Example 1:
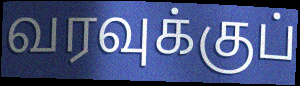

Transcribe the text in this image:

வரவுக்குப்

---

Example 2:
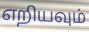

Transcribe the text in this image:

எறியவும்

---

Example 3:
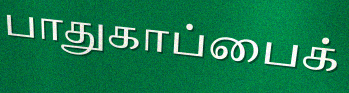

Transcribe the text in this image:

பாதுகாப்பைக்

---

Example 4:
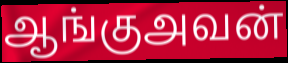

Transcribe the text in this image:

ஆங்குஅவன்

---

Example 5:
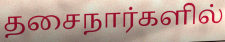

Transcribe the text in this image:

தசைநார்களில்